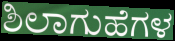
ಶಿಲಾಗುಹೆಗಳ